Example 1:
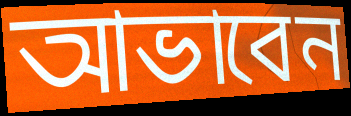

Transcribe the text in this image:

আভাবেন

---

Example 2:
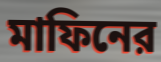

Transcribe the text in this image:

মাফিনের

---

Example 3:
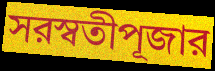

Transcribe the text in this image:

সরস্বতীপূজার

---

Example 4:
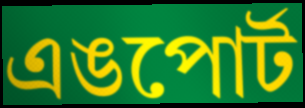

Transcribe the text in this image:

এঙপোর্ট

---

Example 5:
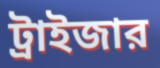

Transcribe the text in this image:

ট্রাইজার